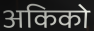
अकिको